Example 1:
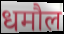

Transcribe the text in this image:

धमौल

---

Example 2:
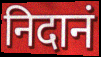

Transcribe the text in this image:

निदानं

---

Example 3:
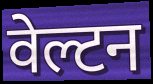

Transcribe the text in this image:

वेल्टन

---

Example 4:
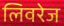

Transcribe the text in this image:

लिवरेज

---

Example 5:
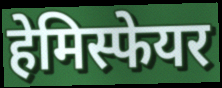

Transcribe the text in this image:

हेमिस्फेयर